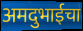
अमदुभाईचा